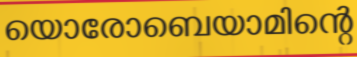
യൊരോബെയാമിന്റെ